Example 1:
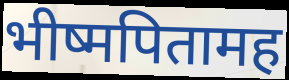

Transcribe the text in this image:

भीष्मपितामह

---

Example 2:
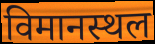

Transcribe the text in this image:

विमानस्थल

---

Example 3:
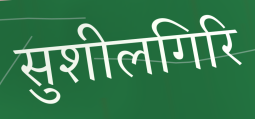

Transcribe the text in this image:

सुशीलगिरि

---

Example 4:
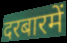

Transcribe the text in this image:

दरबारमें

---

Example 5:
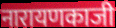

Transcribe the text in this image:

नारायणकाजी